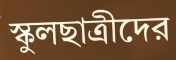
স্কুলছাত্রীদের